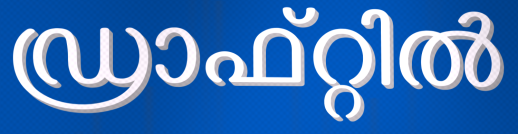
ഡ്രാഫ്റ്റിൽ